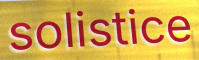
solistice